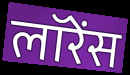
लॉरेंस